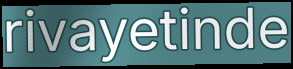
rivayetinde